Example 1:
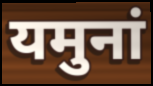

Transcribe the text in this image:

यमुनां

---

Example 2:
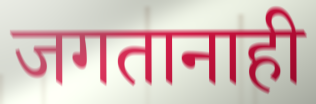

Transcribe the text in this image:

जगतानाही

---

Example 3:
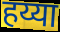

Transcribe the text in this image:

हय्या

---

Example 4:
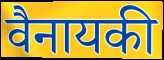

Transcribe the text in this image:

वैनायकी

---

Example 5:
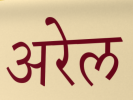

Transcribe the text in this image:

अरेल